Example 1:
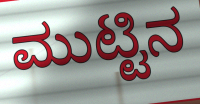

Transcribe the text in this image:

ಮುಟ್ಟಿನ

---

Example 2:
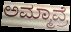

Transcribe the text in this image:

ಅಮ್ಮಾವ್ರೆ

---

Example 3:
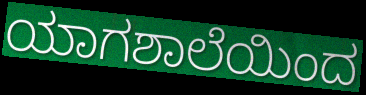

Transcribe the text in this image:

ಯಾಗಶಾಲೆಯಿಂದ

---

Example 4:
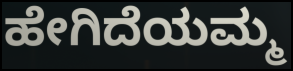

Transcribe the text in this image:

ಹೇಗಿದೆಯಮ್ಮ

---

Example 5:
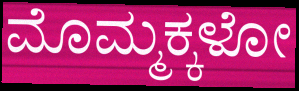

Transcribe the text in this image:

ಮೊಮ್ಮಕ್ಕಳೋ